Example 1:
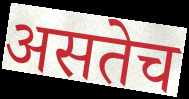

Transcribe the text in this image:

असतेच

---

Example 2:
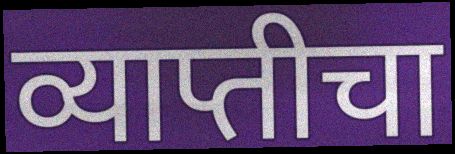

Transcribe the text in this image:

व्याप्तीचा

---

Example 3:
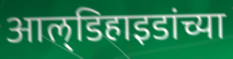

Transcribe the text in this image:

आल्डिहाइडांच्या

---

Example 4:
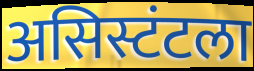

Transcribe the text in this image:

असिस्टंटला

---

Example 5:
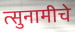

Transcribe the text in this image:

त्सुनामीचे